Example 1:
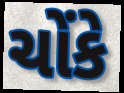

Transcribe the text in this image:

ચોંકે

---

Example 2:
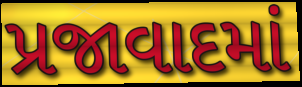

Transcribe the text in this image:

પ્રજાવાદમાં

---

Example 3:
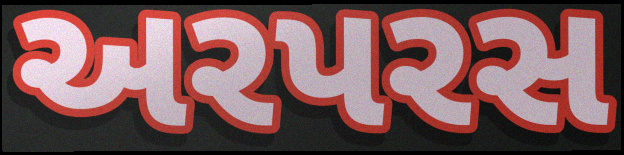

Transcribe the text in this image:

અરપરસ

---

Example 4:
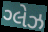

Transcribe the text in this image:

ગ્લેઝ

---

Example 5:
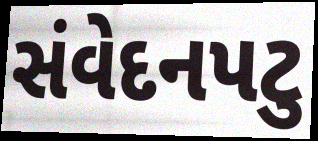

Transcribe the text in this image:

સંવેદનપટુ